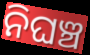
ନିଘଞ୍ଚ